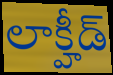
లాక్హీడ్